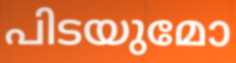
പിടയുമോ